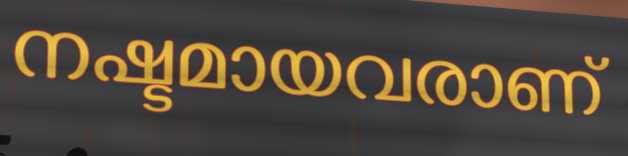
നഷ്ടമായവരാണ്